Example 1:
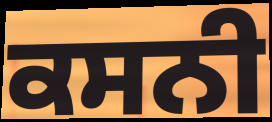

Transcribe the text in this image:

ਕਸਨੀ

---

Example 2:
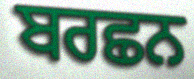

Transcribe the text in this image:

ਬਰਛਨ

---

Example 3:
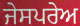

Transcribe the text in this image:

ਜੇਸਪਰੇਅ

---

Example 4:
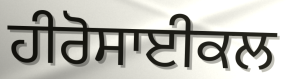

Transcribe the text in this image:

ਹੀਰੋਸਾਈਕਲ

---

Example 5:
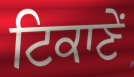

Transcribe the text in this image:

ਟਿਕਾਣੇਂ